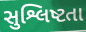
સુશ્લિષ્ટતા